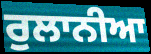
ਰੁਲਾਨੀਆ